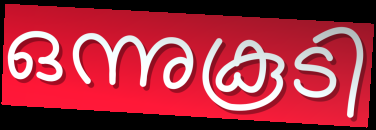
ഒന്നുകൂടി